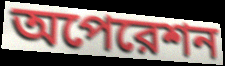
অপেরেশন